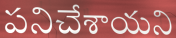
పనిచేశాయని